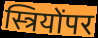
स्त्रियोंपर